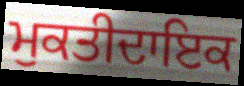
ਮੁਕਤੀਦਾਇਕ